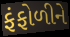
ફંફોળીને